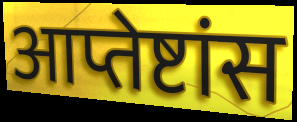
आप्तेष्टांस